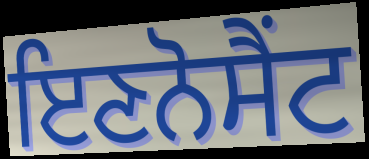
ਇਣਨੋਸੈਂਟ